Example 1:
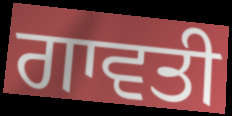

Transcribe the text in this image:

ਗਾਵਤੀ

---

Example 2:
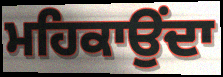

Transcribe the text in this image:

ਮਹਿਕਾਉਂਦਾ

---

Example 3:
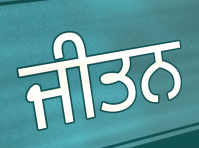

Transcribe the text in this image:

ਜੀਤਨ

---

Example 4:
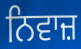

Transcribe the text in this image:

ਨਿਵਾਜ਼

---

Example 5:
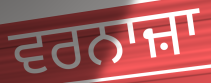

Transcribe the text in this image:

ਵਰਨਾਜ਼ਾ